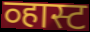
व्हास्ट